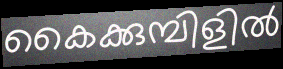
കൈക്കുമ്പിളിൽ